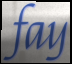
fay